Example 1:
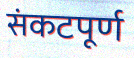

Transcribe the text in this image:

संकटपूर्ण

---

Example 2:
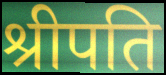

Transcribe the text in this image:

श्रीपति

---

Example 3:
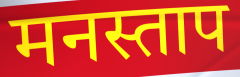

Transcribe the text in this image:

मनस्ताप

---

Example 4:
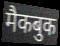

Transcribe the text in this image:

मैकबुक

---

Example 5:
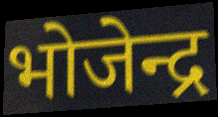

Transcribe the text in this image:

भोजेन्द्र